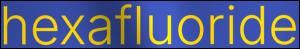
hexafluoride